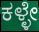
ಕಳ್ಳೇ